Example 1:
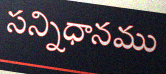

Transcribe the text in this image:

సన్నిధానము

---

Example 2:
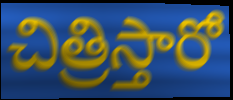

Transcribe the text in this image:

చిత్రిస్తారో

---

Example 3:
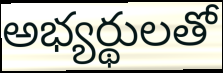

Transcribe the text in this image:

అభ్యర్థులతో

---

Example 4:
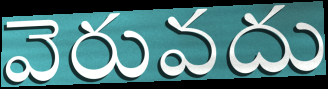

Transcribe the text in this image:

వెరువదు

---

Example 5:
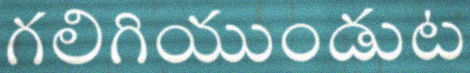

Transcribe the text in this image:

గలిగియుండుట